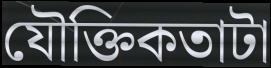
যৌক্তিকতাটা